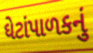
ઘેટાંપાળકનું